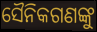
ସୈନିକଗଣଙ୍କୁ